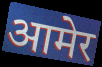
आमेर